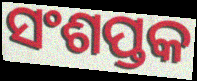
ସଂଶପ୍ତକ